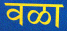
वळा